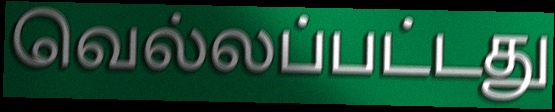
வெல்லப்பட்டது